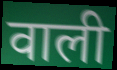
वाली